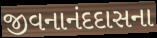
જીવનાનંદદાસના